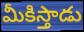
మీకిస్తాడు